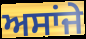
ਅਸਾਂਜੇ